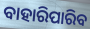
ବାହାରିପାରିବ